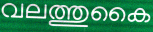
വലത്തുകൈ